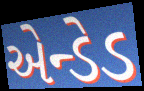
એન્ડેડ